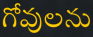
గోవులను